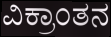
ವಿಕ್ರಾಂತನ